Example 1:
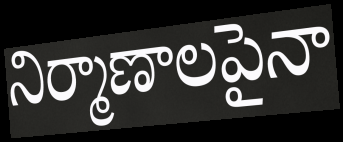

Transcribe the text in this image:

నిర్మాణాలపైనా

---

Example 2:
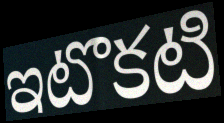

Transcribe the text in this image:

ఇటొకటి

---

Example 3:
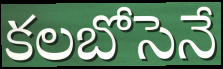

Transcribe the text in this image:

కలబోసెనే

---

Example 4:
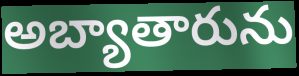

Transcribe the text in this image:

అబ్యాతారును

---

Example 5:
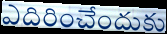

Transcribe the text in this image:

ఎదిరించేందుకు